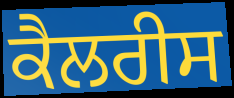
ਕੈਲਰੀਸ